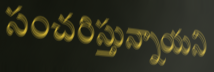
సంచరిస్తున్నాయని